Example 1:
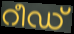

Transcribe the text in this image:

റീഡ്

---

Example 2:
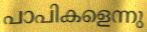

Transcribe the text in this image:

പാപികളെന്നു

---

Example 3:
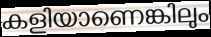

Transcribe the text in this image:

കളിയാണെങ്കിലും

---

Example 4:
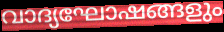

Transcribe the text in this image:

വാദ്യഘോഷങ്ങളും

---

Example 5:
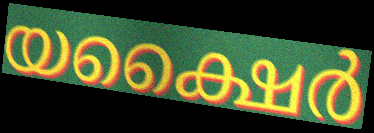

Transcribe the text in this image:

യക്ഷൈർ